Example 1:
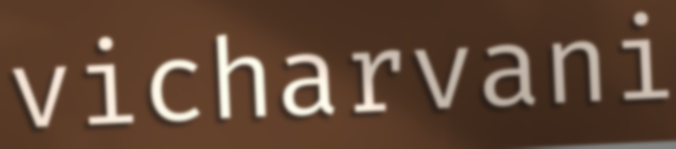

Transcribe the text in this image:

vicharvani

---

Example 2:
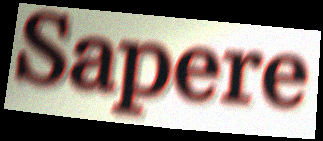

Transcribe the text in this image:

Sapere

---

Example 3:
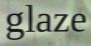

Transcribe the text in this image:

glaze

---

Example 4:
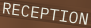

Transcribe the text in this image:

RECEPTION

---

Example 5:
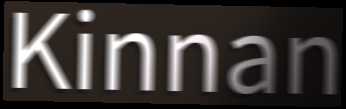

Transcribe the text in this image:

Kinnan